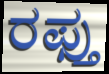
ರಫ್ತು